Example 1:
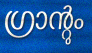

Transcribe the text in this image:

ഗ്രാന്റും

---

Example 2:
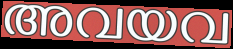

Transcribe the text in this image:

അവയവ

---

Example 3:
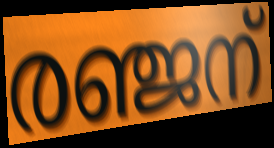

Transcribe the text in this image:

രഞ്ജന്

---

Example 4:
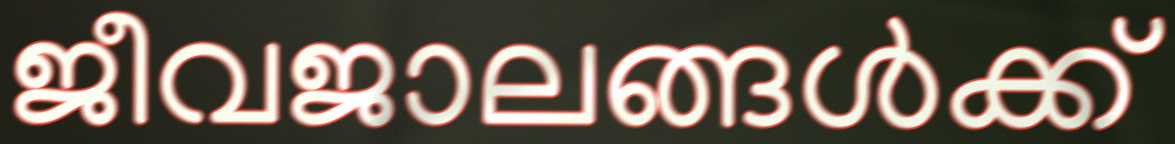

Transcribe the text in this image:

ജീവജാലങ്ങൾക്ക്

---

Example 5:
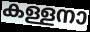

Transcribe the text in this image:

കള്ളനാ